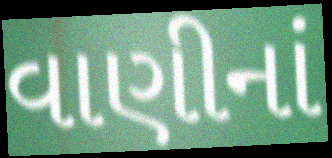
વાણીનાં